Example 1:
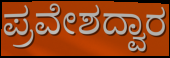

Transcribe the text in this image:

ಪ್ರವೇಶದ್ವಾರ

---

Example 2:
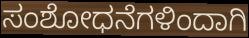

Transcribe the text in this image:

ಸಂಶೋಧನೆಗಳಿಂದಾಗಿ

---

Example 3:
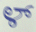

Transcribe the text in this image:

ಳ್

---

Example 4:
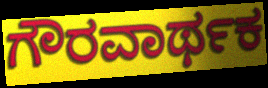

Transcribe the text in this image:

ಗೌರವಾರ್ಥಕ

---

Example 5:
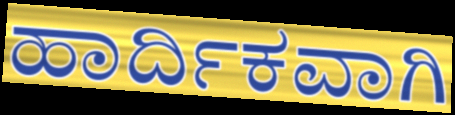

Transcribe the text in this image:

ಹಾರ್ದಿಕವಾಗಿ